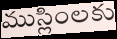
ముస్లింలకు